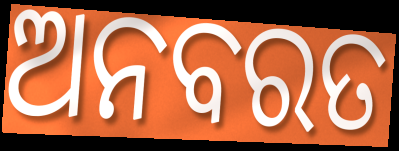
ଅନବରତ